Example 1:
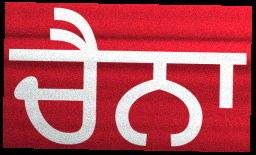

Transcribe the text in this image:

ਚੈਨਾ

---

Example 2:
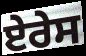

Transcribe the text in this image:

ਏਰੇਸ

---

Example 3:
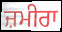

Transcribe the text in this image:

ਜ਼ਮੀਰਾ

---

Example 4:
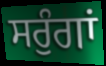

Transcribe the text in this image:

ਸਰੁੰਗਾਂ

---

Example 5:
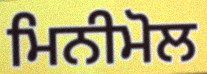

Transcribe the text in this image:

ਮਿਨੀਮੋਲ